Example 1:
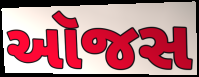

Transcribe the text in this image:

ઑજસ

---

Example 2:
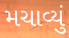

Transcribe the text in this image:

મચાવ્યું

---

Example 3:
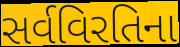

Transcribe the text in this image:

સર્વવિરતિના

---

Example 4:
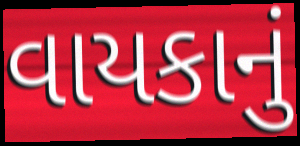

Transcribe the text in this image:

વાયકાનું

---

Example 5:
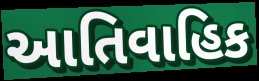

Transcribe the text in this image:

આતિવાહિક